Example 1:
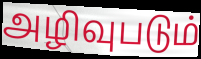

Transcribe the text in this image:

அழிவுபடும்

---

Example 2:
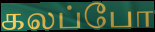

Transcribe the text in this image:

கலப்போ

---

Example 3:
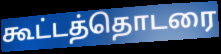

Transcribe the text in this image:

கூட்டத்தொடரை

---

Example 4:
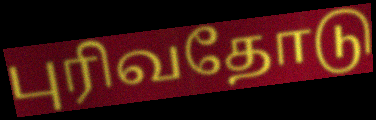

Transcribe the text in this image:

புரிவதோடு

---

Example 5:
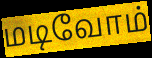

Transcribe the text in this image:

மடிவோம்